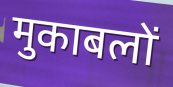
मुकाबलों